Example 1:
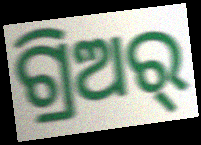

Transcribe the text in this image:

ଗ୍ରିଅର୍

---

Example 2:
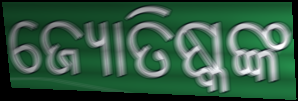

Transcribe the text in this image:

ଜ୍ୟୋତିଷ୍କଙ୍କ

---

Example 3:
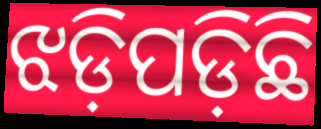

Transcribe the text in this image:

ଝଡ଼ିପଡ଼ିଛି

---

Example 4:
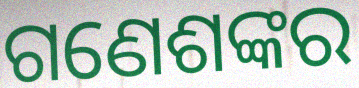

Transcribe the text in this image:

ଗଣେଶଙ୍କର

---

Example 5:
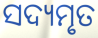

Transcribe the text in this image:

ସଦ୍ୟମୃତ